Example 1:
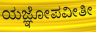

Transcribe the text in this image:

ಯಜ್ಞೋಪವೀತೀ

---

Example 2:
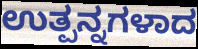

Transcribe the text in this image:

ಉತ್ಪನ್ನಗಳಾದ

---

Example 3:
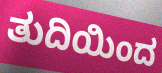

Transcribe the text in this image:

ತುದಿಯಿಂದ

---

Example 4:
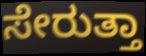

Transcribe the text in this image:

ಸೇರುತ್ತಾ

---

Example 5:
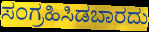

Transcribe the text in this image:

ಸಂಗ್ರಹಿಸಿಡಬಾರದು